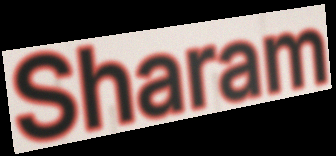
Sharam